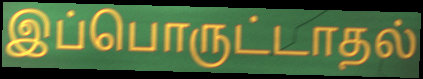
இப்பொருட்டாதல்